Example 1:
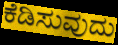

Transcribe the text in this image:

ಕೆಡಿಸುವುದು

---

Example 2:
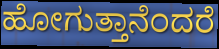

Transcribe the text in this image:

ಹೋಗುತ್ತಾನೆಂದರೆ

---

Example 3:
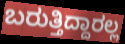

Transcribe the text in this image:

ಬರುತ್ತಿದ್ದಾರಲ್ಲ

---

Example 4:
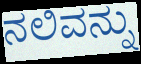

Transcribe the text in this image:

ನಲಿವನ್ನು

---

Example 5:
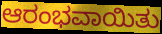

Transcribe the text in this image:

ಆರಂಭವಾಯಿತು